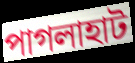
পাগলাহাট